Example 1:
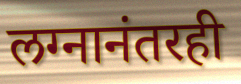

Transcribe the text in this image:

लग्नानंतरही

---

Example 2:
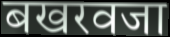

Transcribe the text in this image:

बखरवजा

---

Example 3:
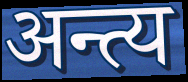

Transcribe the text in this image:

अन्त्य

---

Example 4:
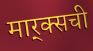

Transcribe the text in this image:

मार्क्सची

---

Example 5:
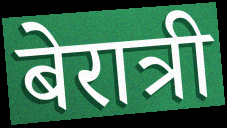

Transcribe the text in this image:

बेरात्री